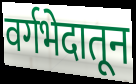
वर्गभेदातून